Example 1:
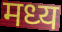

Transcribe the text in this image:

मध्‍य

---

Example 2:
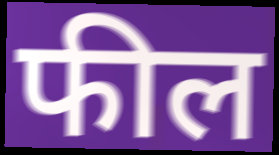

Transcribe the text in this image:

फील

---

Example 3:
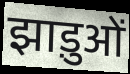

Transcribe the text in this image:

झाड़ुओं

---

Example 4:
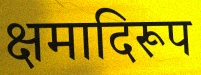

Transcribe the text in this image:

क्षमादिरूप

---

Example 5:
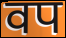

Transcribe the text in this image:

वप